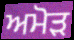
ਅਮੋੜ